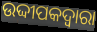
ଉଦ୍ଦୀପକଦ୍ବାରା